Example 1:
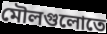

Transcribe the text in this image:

মৌলগুলোতে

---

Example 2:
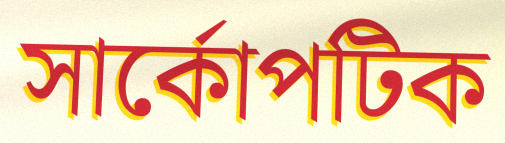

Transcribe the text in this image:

সার্কোপটিক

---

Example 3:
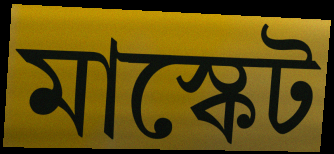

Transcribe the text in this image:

মাস্কেট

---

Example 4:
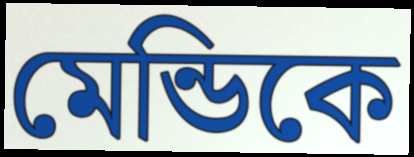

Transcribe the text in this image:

মেন্ডিকে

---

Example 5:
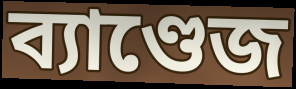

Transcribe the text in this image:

ব্যাণ্ডেজ